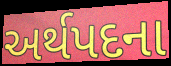
અર્થપદના